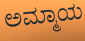
ಅಮ್ಮಾಯ